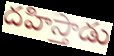
దహిస్తాడు